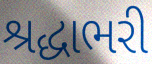
શ્રદ્ધાભરી